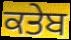
ਕਤੇਬ